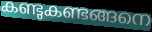
കണ്ടുകണ്ടങ്ങനെ